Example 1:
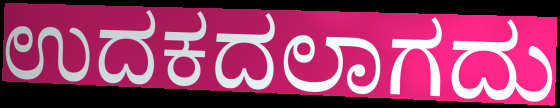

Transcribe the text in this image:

ಉದಕದಲಾಗದು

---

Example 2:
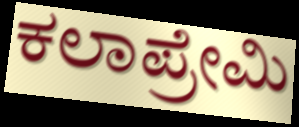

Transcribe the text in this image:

ಕಲಾಪ್ರೇಮಿ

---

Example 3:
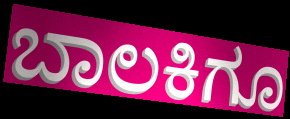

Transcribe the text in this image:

ಬಾಲಕಿಗೂ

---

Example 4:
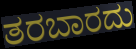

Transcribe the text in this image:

ತರಬಾರದು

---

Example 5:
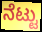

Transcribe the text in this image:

ನೆಟ್ಟು